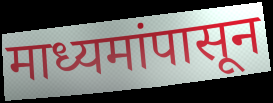
माध्यमांपासून